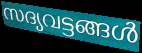
സദ്യവട്ടങ്ങൾ